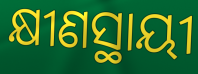
କ୍ଷୀଣସ୍ଥାୟୀ